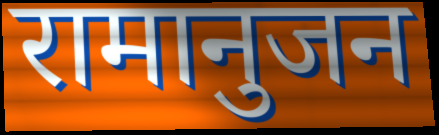
रामानुजन